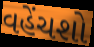
વહેંચશો